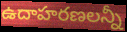
ఉదాహరణలన్నీ